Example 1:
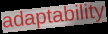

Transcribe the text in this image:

adaptability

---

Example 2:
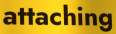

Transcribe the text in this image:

attaching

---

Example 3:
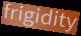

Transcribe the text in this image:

frigidity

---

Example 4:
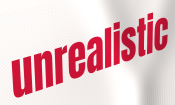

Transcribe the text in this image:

unrealistic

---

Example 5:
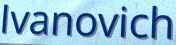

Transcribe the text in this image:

Ivanovich